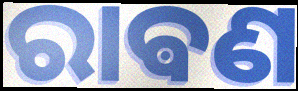
ରାଵଣ